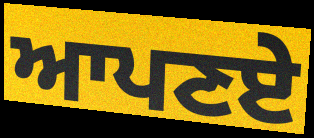
ਆਪਣਏ